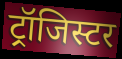
ट्रॉजिस्टर